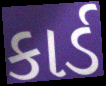
કાર્ડ